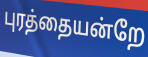
புரத்தையன்றே